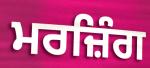
ਮਰਜ਼ਿੰਗ